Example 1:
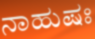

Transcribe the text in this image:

ನಾಹುಷಃ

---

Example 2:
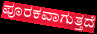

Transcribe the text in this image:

ಪೂರಕವಾಗುತ್ತದೆ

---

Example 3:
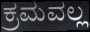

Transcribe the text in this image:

ಕ್ರಮವಲ್ಲ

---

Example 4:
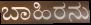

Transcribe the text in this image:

ಬಾಹಿರನು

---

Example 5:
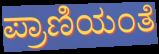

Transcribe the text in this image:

ಪ್ರಾಣಿಯಂತೆ